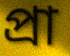
প্রা